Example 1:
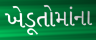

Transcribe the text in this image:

ખેડૂતોમાંના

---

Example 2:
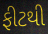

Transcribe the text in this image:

ફીટથી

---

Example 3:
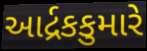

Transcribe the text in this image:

આર્દ્રકકુમારે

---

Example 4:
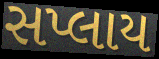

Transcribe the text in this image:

સપ્લાય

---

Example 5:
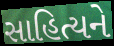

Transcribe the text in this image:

સાહિત્યને